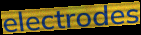
electrodes